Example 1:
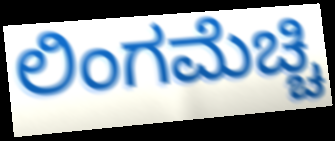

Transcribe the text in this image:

ಲಿಂಗಮೆಚ್ಚಿ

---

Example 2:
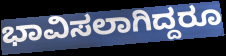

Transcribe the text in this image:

ಭಾವಿಸಲಾಗಿದ್ದರೂ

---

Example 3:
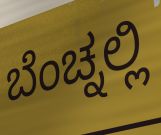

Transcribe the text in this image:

ಬೆಂಚ್ನಲ್ಲಿ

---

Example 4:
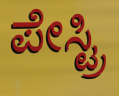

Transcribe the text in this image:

ಪೇಸ್ಟ್ರಿ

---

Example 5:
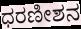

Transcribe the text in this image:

ಧರಣೀಶನ